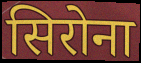
सिरोना